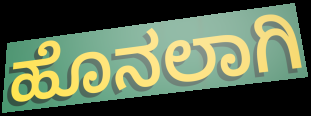
ಹೊನಲಾಗಿ